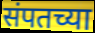
संपतच्या